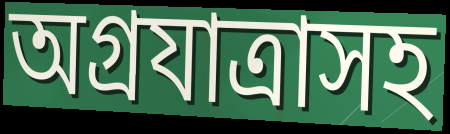
অগ্রযাত্রাসহ